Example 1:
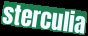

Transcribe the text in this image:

sterculia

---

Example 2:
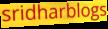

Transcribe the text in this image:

sridharblogs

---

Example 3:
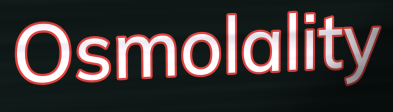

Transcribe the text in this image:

Osmolality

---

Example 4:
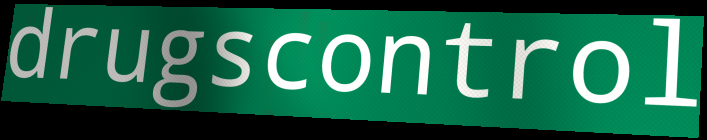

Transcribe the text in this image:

drugscontrol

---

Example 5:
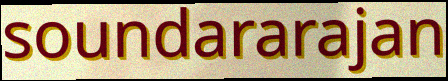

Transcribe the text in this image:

soundararajan